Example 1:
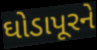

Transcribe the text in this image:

ઘોડાપૂરને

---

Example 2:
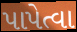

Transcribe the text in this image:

પાપેત્વા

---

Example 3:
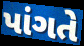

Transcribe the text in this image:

પાંગતે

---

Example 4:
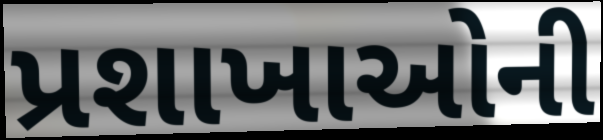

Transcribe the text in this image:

પ્રશાખાઓની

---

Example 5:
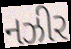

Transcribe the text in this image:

નઝીર